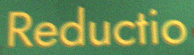
Reductio